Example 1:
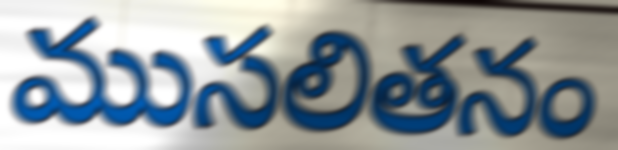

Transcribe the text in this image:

ముసలితనం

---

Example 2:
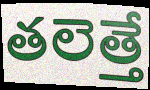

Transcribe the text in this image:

తలెత్తే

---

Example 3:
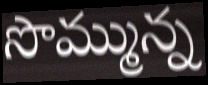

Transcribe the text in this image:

సొమ్మున్న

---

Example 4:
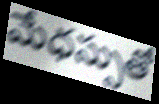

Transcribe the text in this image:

మేధస్సుతో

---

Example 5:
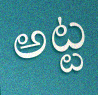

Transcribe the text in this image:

అట్ట